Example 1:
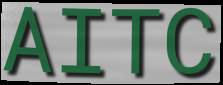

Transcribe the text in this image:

AITC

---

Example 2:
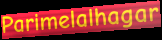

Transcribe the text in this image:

Parimelalhagar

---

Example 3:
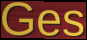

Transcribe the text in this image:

Ges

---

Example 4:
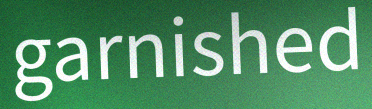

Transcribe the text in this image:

garnished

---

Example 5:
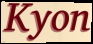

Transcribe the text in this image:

Kyon